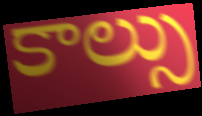
కాల్సు